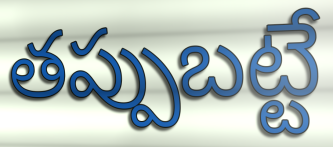
తప్పుబట్టే